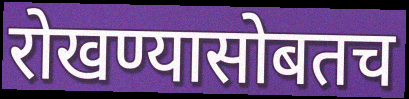
रोखण्यासोबतच